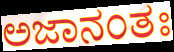
ಅಜಾನಂತಃ